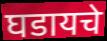
घडायचे